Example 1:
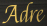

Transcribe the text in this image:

Adre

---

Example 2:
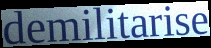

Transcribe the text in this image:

demilitarise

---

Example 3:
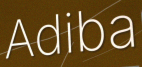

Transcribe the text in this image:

Adiba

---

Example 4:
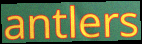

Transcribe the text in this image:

antlers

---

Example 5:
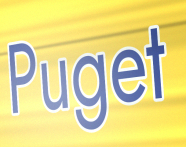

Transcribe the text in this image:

Puget